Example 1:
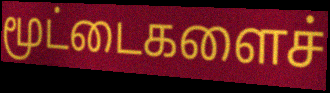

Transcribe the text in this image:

மூட்டைகளைச்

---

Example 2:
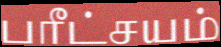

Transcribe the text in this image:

பரீட்சயம்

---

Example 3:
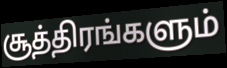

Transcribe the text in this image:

சூத்திரங்களும்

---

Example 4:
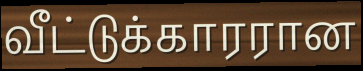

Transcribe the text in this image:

வீட்டுக்காரரான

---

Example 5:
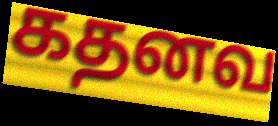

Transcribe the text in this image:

கதனவ